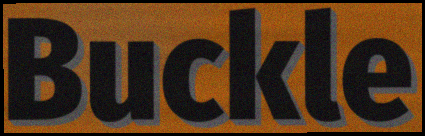
Buckle